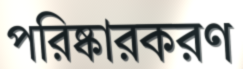
পরিষ্কারকরণ